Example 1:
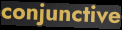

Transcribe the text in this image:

conjunctive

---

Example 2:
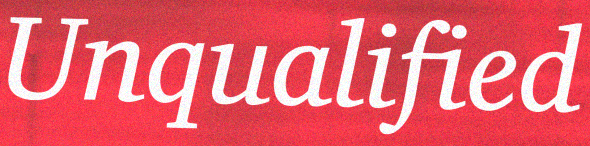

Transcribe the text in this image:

Unqualified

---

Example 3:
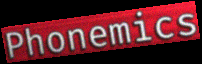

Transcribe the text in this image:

Phonemics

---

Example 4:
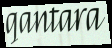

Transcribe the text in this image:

qantara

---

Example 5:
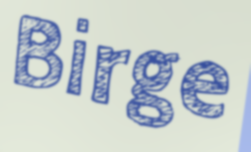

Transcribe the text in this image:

Birge